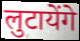
लुटायेंगे